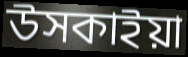
উসকাইয়া